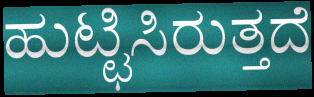
ಹುಟ್ಟಿಸಿರುತ್ತದೆ